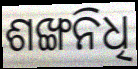
ଶଙ୍ଖନିଧି